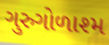
ગુરુગોળાશ્મ